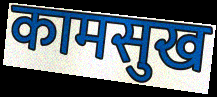
कामसुख